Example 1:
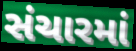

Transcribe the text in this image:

સંચારમાં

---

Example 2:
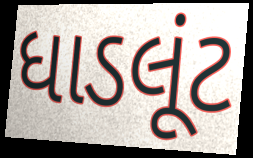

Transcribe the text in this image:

ધાડલૂંટ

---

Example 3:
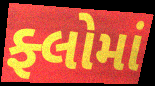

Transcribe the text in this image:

ફ્લોમાં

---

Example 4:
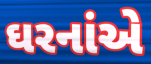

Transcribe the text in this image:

ઘરનાંએ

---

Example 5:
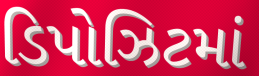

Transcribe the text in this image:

ડિપોઝિટમાં